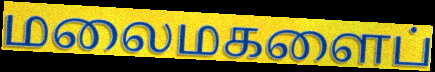
மலைமகளைப்